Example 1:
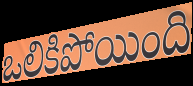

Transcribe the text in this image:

ఒలికిపోయింది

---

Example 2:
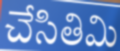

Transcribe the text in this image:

చేసితిమి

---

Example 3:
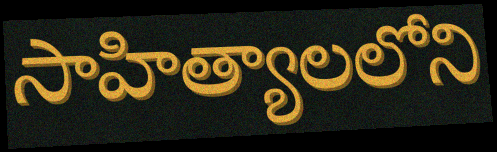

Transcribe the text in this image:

సాహిత్యాలలోని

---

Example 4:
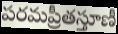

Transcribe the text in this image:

పరమప్రీతస్తూణీ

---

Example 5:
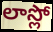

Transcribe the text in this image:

లాస్లో